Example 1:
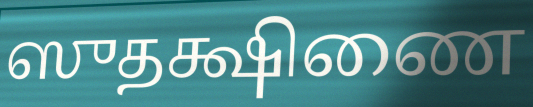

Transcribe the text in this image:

ஸுதக்ஷிணை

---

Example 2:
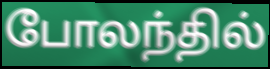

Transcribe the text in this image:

போலந்தில்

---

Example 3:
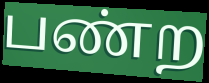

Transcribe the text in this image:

பண்ற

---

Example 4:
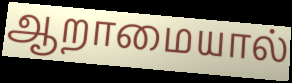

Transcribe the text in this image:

ஆறாமையால்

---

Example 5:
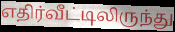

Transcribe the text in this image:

எதிர்வீட்டிலிருந்து